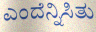
ಎಂದೆನ್ನಿಸಿತು